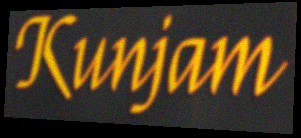
Kunjam